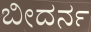
ಬೀದರ್ನ